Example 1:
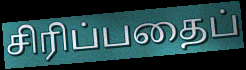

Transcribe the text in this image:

சிரிப்பதைப்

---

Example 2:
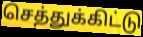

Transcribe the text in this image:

செத்துக்கிட்டு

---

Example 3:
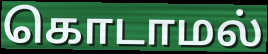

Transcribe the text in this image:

கொடாமல்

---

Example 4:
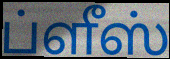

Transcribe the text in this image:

ப்ளீஸ்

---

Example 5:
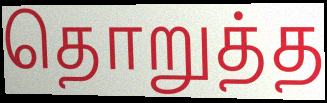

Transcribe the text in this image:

தொறுத்த